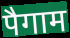
पैगाम